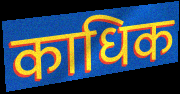
काधिक